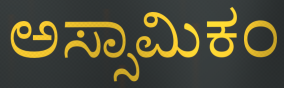
ಅಸ್ಸಾಮಿಕಂ